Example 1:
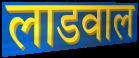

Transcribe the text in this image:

लाडवाल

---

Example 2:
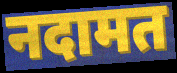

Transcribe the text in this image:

नदामत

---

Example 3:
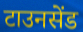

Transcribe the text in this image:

टाउनसेंड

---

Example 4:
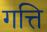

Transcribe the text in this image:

गत्ति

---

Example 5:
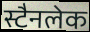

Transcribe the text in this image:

स्टैनलेक